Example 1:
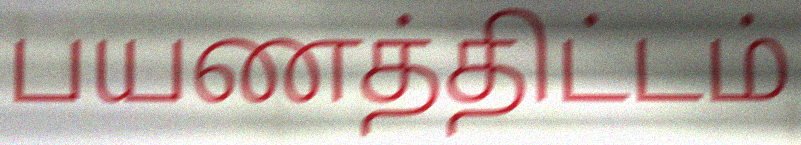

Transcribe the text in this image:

பயணத்திட்டம்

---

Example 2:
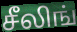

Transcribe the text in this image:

சீலிங்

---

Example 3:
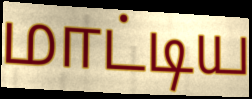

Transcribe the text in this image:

மாட்டிய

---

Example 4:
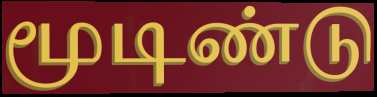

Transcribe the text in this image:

மூடிண்டு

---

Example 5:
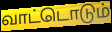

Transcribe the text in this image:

வாட்டொடும்